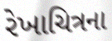
રેખાચિત્રના